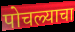
पोचल्याचा